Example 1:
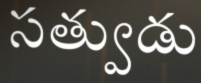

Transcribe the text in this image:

సత్వుడు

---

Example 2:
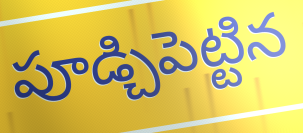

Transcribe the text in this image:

పూడ్చిపెట్టిన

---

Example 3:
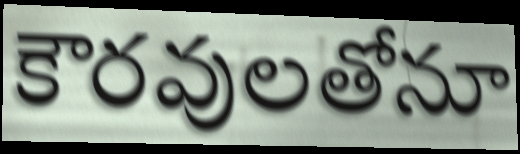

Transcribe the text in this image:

కౌరవులతోనూ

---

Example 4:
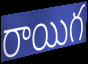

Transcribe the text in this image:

రాయిగ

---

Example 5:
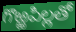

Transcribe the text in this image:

గొఱ్ఱపిల్లతో